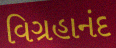
વિગ્રહાનંદ